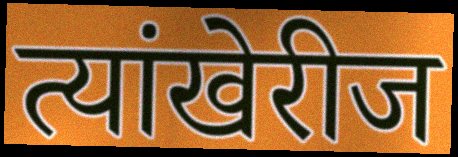
त्यांखेरीज